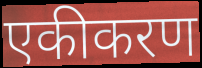
एकीकरण